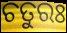
ଚତୁରଃ